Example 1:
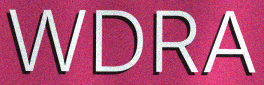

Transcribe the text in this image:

WDRA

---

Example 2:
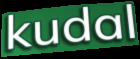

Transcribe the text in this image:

kudal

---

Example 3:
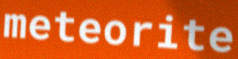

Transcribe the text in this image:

meteorite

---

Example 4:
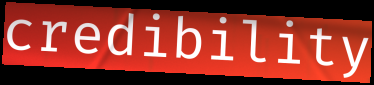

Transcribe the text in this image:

credibility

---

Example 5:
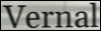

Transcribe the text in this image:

Vernal